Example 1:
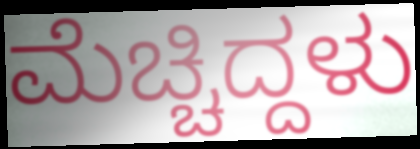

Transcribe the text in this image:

ಮೆಚ್ಚಿದ್ದಳು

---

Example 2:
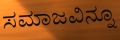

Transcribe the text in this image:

ಸಮಾಜವಿನ್ನೂ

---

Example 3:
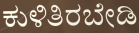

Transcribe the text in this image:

ಕುಳಿತಿರಬೇಡಿ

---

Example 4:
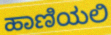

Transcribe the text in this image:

ಹಾಣಿಯಲಿ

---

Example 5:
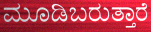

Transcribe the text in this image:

ಮೂಡಿಬರುತ್ತಾರೆ